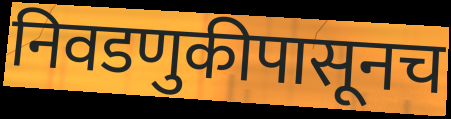
निवडणुकीपासूनच